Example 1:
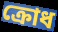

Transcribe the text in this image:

ক্ৰোধ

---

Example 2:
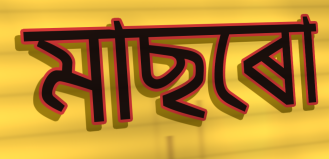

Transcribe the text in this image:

মাছৰো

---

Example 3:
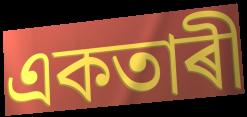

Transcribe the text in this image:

একতাৰী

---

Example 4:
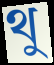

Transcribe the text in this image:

থু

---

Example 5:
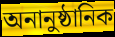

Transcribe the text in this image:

অনানুষ্ঠানিক